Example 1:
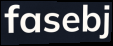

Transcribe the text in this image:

fasebj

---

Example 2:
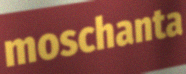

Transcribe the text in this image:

moschanta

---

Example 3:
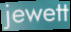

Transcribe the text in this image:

jewett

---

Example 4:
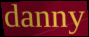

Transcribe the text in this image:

danny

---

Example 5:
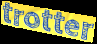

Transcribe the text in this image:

trotter